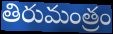
తిరుమంత్రం